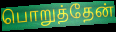
பொறுத்தேன்